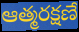
ఆత్మరక్షణే